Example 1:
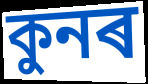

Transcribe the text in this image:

কুনৰ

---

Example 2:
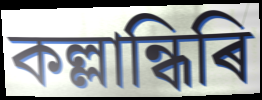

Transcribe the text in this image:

কল্লান্ধিৰি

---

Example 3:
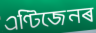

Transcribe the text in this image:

এণ্টিজেনৰ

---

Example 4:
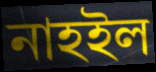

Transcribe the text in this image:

নাহইল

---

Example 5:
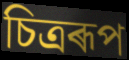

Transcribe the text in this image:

চিত্ৰৰূপ